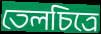
তেলচিত্রে